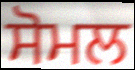
ਸੋਮਲ